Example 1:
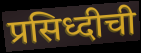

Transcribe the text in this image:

प्रसिध्दीची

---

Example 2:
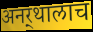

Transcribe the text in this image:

अनर्थालाच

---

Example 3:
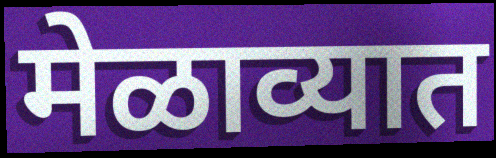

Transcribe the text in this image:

मेळाव्यात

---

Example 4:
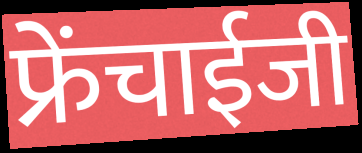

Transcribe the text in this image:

फ्रेंचाईजी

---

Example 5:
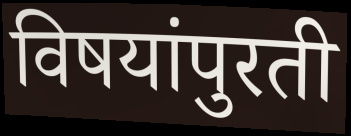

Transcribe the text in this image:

विषयांपुरती